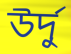
উর্দু